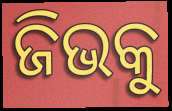
ଜିଭକୁ